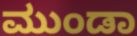
ಮುಂಡಾ